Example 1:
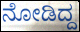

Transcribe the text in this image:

ನೋಡಿದ್ದ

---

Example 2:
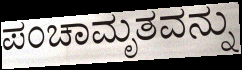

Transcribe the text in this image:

ಪಂಚಾಮೃತವನ್ನು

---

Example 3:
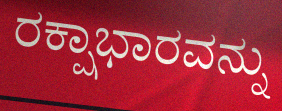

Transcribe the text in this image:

ರಕ್ಷಾಭಾರವನ್ನು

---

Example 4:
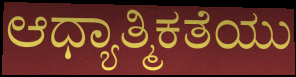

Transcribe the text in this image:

ಆಧ್ಯಾತ್ಮಿಕತೆಯು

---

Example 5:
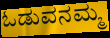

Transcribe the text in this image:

ಓಡುವನಮ್ಮ